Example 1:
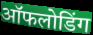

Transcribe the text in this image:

ऑफलोडिंग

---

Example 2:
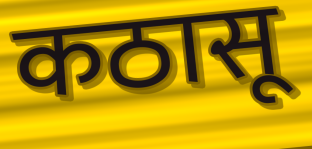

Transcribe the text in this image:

कठासू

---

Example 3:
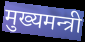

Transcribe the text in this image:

मुख्यमन्त्री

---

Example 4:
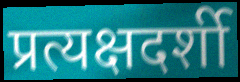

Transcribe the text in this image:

प्रत्यक्षदर्शी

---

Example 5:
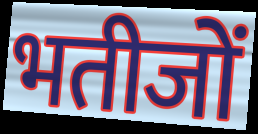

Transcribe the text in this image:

भतीजों